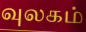
வுலகம்